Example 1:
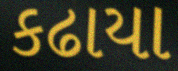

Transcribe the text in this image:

કઢાયા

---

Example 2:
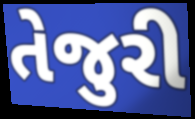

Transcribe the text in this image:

તેજુરી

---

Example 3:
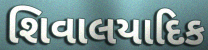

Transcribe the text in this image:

શિવાલયાદિક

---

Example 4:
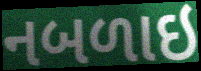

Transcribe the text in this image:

નબળાઇ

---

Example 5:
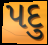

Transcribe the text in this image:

પદુ